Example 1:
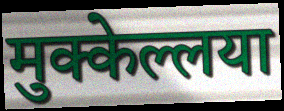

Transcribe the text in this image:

मुक्केल्लया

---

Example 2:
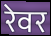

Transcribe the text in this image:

रेवर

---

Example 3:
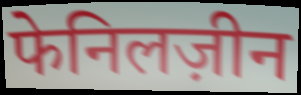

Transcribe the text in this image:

फेनिलज़ीन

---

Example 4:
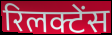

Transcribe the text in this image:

रिलक्टेंस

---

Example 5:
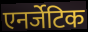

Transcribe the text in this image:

एनर्जेटिक